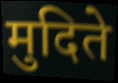
मुदिते